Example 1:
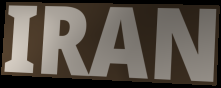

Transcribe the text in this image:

IRAN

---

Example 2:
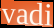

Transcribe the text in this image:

vadi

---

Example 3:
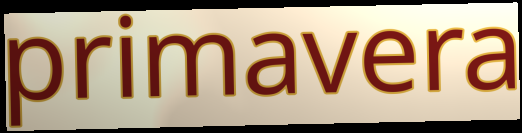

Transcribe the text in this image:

primavera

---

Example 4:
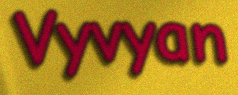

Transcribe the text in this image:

Vyvyan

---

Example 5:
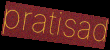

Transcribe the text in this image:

pratisad